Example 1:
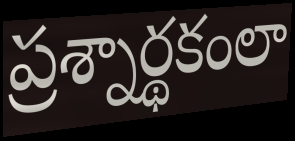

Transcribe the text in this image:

ప్రశ్నార్థకంలా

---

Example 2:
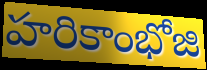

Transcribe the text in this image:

హరికాంభోజి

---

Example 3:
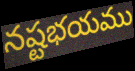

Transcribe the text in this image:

నష్టభయము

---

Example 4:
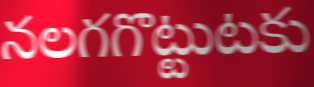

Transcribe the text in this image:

నలగగొట్టుటకు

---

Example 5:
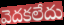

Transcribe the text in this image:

వెదకలేదు